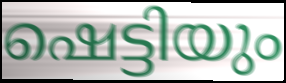
ഷെട്ടിയും